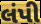
લંપી